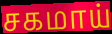
சகமாய்